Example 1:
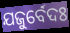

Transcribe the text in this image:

ଯଜୁର୍ବେଦଃ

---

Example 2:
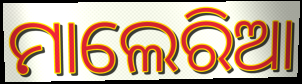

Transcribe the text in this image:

ମାଲେରିଆ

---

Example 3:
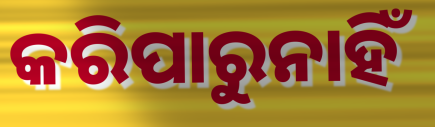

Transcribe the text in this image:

କରିପାରୁନାହିଁ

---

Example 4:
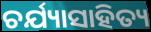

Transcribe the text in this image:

ଚର୍ଯ୍ୟାସାହିତ୍ୟ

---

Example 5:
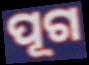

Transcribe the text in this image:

ପୂଗ